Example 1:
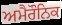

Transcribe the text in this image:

ਅਮੈਰੌਨਿਕ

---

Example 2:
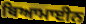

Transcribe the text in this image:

ਥਿਆਮਾਈਨ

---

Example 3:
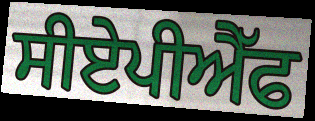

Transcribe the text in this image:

ਸੀਏਪੀਐੱਫ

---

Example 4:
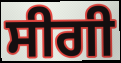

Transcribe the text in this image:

ਸੀਗੀ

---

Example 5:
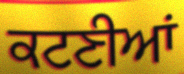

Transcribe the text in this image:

ਕਟਣੀਆਂ